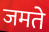
जमते